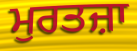
ਮੁਰਤਜ਼ਾ